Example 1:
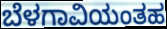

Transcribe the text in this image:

ಬೆಳಗಾವಿಯಂತಹ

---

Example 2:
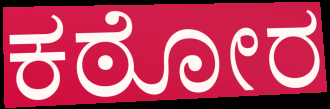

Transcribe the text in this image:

ಕಠೋರ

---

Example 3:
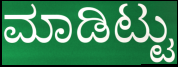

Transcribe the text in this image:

ಮಾಡಿಟ್ಟು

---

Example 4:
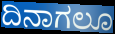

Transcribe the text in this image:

ದಿನಾಗಲೂ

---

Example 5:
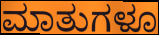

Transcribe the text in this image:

ಮಾತುಗಳೂ